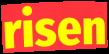
risen